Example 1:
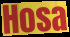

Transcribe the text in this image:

Hosa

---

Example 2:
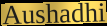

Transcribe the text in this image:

Aushadhi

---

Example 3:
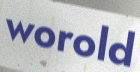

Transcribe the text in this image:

worold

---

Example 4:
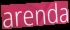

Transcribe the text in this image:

arenda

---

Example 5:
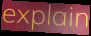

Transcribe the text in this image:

explain